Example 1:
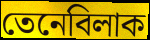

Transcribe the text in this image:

তেনেবিলাক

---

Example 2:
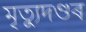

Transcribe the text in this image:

মৃত্যুদণ্ডৰ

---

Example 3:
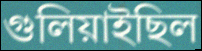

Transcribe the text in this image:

গুলিয়াইছিল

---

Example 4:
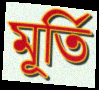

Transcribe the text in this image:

মূৰ্তি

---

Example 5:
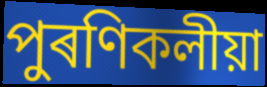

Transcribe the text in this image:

পুৰণিকলীয়া